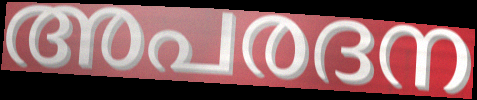
അപരദന